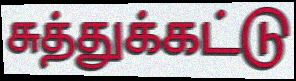
சுத்துக்கட்டு